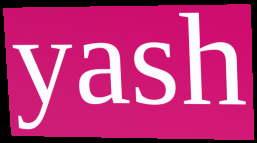
yash